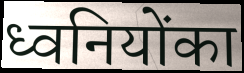
ध्वनियोंका